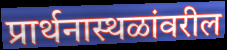
प्रार्थनास्थळांवरील